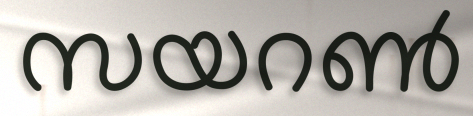
സയറൺ